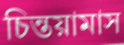
চিন্তয়ামাস